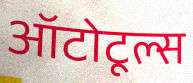
ऑटोटूल्स